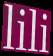
lili